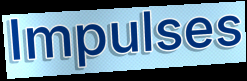
Impulses